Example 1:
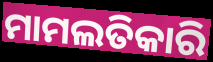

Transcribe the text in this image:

ମାମଲତିକାରି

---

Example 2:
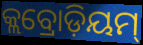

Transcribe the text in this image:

କ୍ଲବ୍ରୋଡ଼ିୟମ୍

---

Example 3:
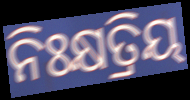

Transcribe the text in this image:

ନିଃକ୍ଷତ୍ରିୟ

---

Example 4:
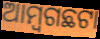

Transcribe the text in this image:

ଆମ୍ବଗଛଟା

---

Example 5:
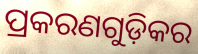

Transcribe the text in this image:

ପ୍ରକରଣଗୁଡ଼ିକର